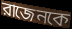
রাজেনকে